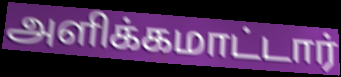
அளிக்கமாட்டார்